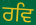
ਰਵਿ